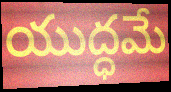
యుద్ధమే